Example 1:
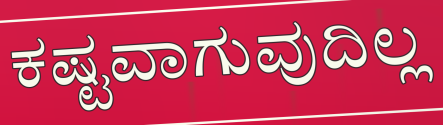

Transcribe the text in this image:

ಕಷ್ಟವಾಗುವುದಿಲ್ಲ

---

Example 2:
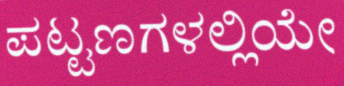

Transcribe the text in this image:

ಪಟ್ಟಣಗಳಲ್ಲಿಯೇ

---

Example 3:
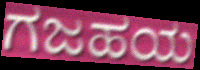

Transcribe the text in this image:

ಗಜಹಯ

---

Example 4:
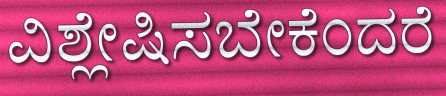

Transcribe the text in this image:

ವಿಶ್ಲೇಷಿಸಬೇಕೆಂದರೆ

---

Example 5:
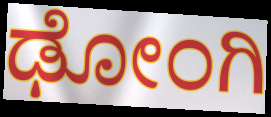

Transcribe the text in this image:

ಢೋಂಗಿ